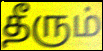
தீரும்